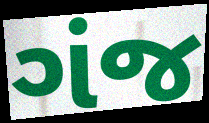
ગંજ